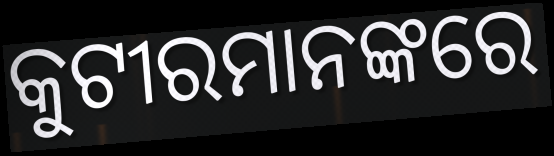
କୁଟୀରମାନଙ୍କରେ